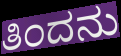
ತಿಂದನು